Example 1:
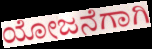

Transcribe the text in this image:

ಯೋಜನೆಗಾಗಿ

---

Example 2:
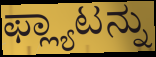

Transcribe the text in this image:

ಫ್ಲ್ಯಾಟನ್ನು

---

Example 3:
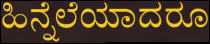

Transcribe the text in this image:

ಹಿನ್ನೆಲೆಯಾದರೂ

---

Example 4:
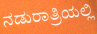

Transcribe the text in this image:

ನಡುರಾತ್ರಿಯಲ್ಲಿ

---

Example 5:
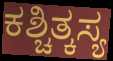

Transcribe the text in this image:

ಕಶ್ಚಿತ್ಕಸ್ಯ